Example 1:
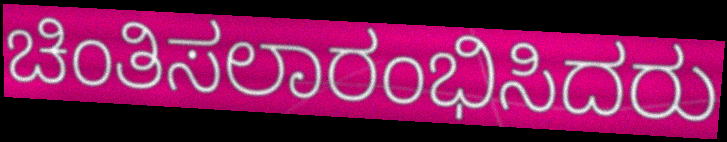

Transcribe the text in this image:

ಚಿಂತಿಸಲಾರಂಭಿಸಿದರು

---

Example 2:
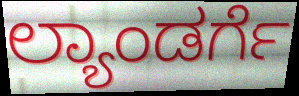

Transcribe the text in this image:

ಲ್ಯಾಂಡರ್ಗೆ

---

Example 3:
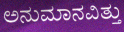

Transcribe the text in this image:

ಅನುಮಾನವಿತ್ತು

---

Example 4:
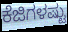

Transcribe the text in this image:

ಕೆಜಿಗಳಷ್ಟು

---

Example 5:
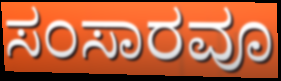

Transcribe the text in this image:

ಸಂಸಾರವೂ